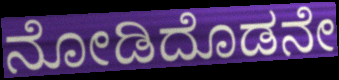
ನೋಡಿದೊಡನೇ